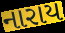
નારાય